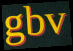
gbv